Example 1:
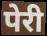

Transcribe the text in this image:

पेरी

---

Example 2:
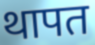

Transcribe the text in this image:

थापत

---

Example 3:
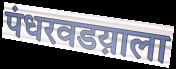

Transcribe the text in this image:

पंधरवडय़ाला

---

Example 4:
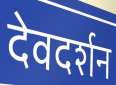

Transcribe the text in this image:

देवदर्शन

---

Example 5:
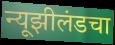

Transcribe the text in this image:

न्यूझीलंडचा